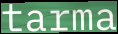
tarma